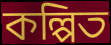
কল্পিত